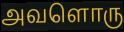
அவளொரு